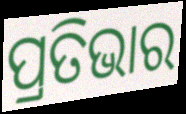
ପ୍ରତିଭାର